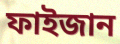
ফাইজান